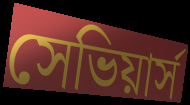
সেভিয়ার্স